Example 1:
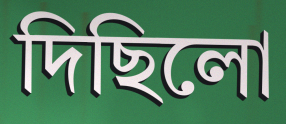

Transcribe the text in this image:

দিছিলো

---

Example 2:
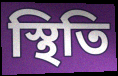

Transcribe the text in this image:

স্থিতি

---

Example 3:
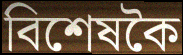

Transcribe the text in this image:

বিশেষকৈ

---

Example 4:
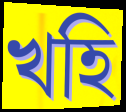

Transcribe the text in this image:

খহি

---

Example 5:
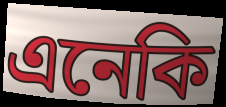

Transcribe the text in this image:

এনেকি